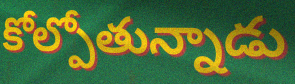
కోల్పోతున్నాడు